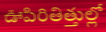
ఊపిరితిత్తుల్లో